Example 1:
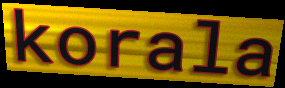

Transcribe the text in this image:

korala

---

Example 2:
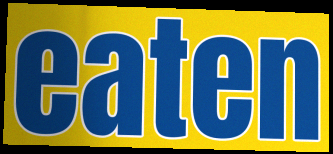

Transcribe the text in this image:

eaten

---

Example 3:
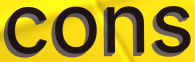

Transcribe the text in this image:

cons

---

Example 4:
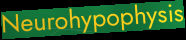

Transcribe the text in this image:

Neurohypophysis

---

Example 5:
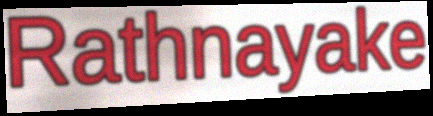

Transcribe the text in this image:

Rathnayake